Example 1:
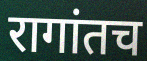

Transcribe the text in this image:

रागांतच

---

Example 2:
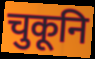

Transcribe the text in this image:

चुकूनि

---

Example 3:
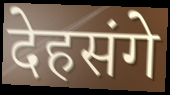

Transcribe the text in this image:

देहसंगे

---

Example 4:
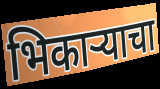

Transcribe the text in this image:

भिकाऱ्याचा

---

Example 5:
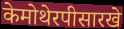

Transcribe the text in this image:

केमोथेरपीसारखे